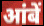
आंबें